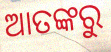
ଆତଙ୍କରୁ